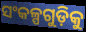
ସଂକଳ୍ପଗୁଡ଼ିକୁ